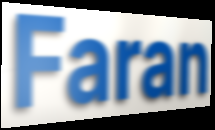
Faran